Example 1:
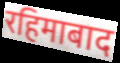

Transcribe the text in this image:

रहिमाबाद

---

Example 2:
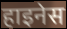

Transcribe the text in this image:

हाइनेस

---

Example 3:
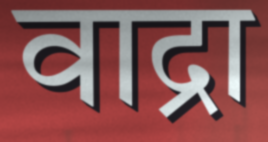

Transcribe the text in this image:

वाद्रा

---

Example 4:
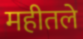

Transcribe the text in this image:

महीतले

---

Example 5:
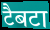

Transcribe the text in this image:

टैबटा